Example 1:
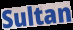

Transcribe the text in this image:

Sultan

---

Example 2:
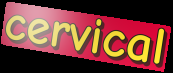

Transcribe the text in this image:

cervical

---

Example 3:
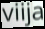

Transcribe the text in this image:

viija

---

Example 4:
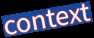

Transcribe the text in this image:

context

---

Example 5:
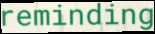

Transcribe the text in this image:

reminding